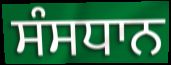
ਸੰਸਧਾਨ